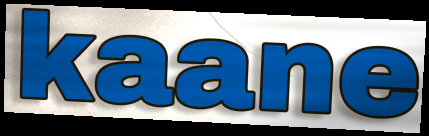
kaane